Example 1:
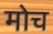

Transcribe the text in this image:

मोच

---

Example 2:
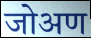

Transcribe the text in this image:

जोअण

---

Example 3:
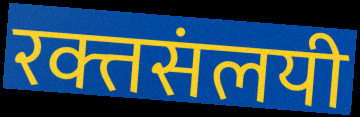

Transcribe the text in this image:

रक्तसंलयी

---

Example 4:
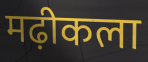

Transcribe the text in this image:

मढ़ीकला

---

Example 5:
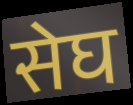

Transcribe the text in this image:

सेघ